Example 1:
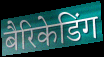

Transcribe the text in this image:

बैरिकेडिंग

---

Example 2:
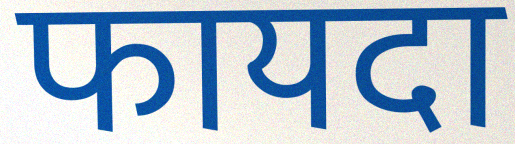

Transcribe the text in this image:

फायदा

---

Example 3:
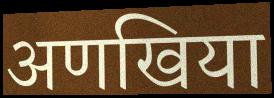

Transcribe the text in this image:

अणखिया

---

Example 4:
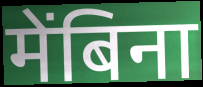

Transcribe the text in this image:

मेंबिना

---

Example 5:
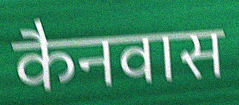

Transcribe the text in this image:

कैनवास